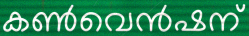
കൺവെൻഷന്